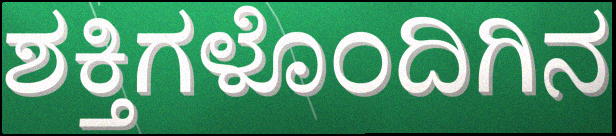
ಶಕ್ತಿಗಳೊಂದಿಗಿನ